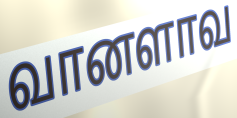
வானளாவ